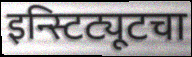
इन्स्टिट्यूटचा